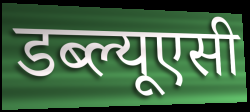
डब्ल्यूएसी